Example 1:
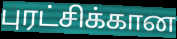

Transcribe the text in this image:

புரட்சிக்கான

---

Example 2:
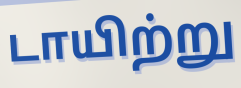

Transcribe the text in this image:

டாயிற்று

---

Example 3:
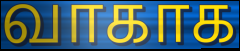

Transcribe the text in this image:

வாகாக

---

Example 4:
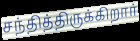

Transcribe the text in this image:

சந்தித்திருக்கிறார்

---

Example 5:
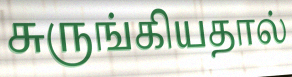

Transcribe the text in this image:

சுருங்கியதால்